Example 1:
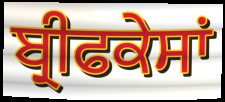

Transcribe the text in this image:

ਬ੍ਰੀਫਕੇਸਾਂ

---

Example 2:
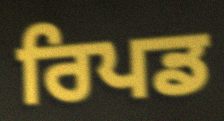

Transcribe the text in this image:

ਰਿਪਡ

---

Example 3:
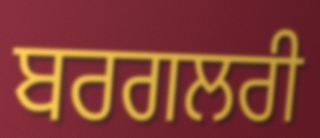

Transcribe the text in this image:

ਬਰਗਲਰੀ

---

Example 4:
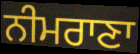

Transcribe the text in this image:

ਨੀਮਰਾਣਾ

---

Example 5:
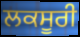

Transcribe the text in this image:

ਲਕਸੂਰੀ